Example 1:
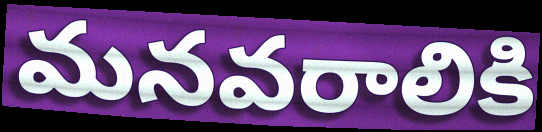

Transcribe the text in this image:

మనవరాలికి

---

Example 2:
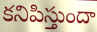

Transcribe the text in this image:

కనిపిస్తుందా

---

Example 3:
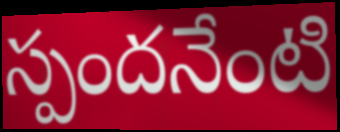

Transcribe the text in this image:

స్పందనేంటి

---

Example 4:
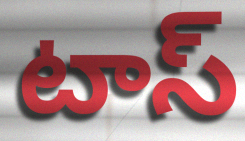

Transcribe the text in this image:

టాస్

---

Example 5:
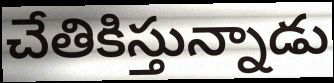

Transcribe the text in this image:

చేతికిస్తున్నాడు